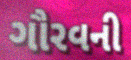
ગૌરવની